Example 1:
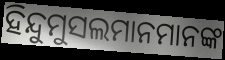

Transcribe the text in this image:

ହିନ୍ଦୁମୁସଲମାନମାନଙ୍କ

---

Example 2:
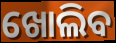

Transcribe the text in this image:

ଖୋଲିବ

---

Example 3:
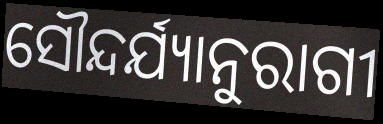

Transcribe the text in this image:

ସୌନ୍ଦର୍ଯ୍ୟାନୁରାଗୀ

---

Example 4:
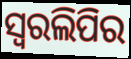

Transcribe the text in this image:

ସ୍ୱରଲିପିର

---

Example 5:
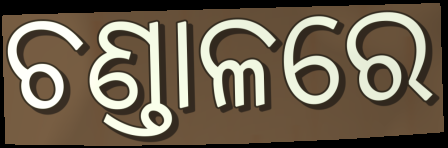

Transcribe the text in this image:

ଚଣ୍ଡାଳରେ